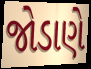
જોડાણે